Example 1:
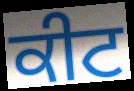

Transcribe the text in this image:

ਕੀਟ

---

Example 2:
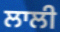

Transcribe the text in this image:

ਲਾਲੀ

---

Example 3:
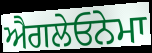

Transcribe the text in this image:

ਐਗਲੇਓਨੇਮਾ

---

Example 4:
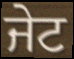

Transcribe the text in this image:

ਜੇਟ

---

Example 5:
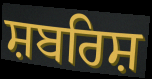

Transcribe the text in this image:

ਸ਼ਬਰਿਸ਼